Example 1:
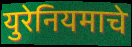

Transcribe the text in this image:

युरेनियमाचे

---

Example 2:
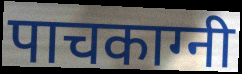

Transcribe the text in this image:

पाचकाग्नी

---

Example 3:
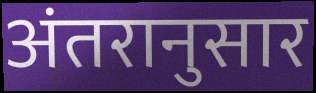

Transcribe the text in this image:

अंतरानुसार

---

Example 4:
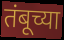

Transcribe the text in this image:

तंबूच्या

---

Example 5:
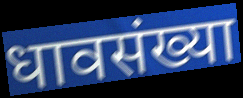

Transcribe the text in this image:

धावसंख्या